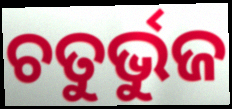
ଚତୁର୍ଭୁଜ